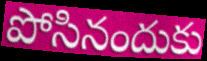
పోసినందుకు